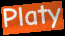
Platy